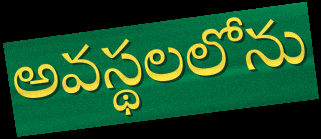
అవస్థలలోను